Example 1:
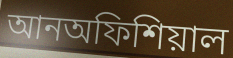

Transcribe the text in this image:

আনঅফিশিয়াল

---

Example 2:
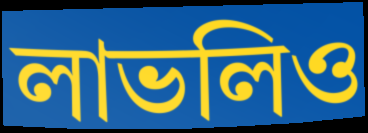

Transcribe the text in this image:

লাভলিও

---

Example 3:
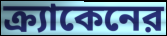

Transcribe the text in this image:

ক্র্যাকেনের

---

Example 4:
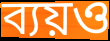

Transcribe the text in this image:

ব্যয়ও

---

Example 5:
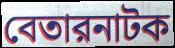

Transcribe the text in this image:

বেতারনাটক